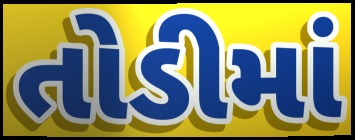
તોડીમાં